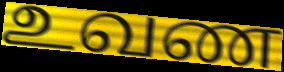
உவண